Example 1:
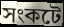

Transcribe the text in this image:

সংকটে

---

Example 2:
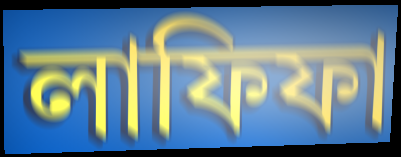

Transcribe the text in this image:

লাফিফা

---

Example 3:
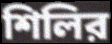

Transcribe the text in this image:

শিলির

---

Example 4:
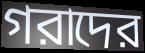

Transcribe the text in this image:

গরাদের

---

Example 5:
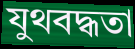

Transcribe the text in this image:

যুথবদ্ধতা